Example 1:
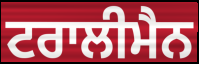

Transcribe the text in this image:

ਟਰਾਲੀਮੈਨ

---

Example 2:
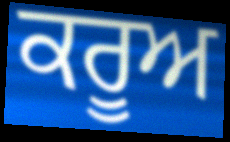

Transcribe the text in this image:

ਕਰੂਅ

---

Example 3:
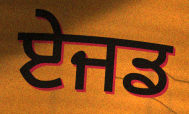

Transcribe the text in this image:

ਏਜਡ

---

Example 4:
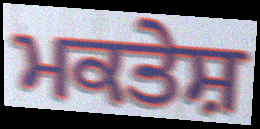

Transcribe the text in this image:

ਮਕਤੇਸ਼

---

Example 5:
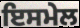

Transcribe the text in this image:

ਇਸਮੇਲ